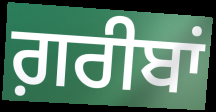
ਗ਼ਰੀਬਾਂ